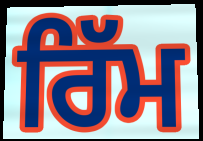
ਰਿੱਮ